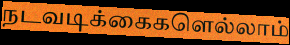
நடவடிக்கைகளெல்லாம்